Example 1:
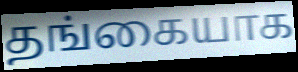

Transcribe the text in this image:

தங்கையாக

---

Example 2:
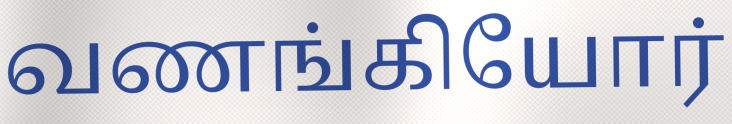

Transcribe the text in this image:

வணங்கியோர்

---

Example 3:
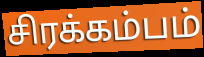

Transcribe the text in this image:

சிரக்கம்பம்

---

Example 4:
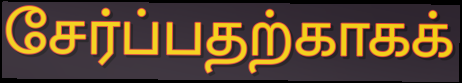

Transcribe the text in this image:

சேர்ப்பதற்காகக்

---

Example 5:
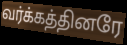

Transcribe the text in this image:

வர்க்கத்தினரே